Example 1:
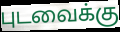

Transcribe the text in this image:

புடவைக்கு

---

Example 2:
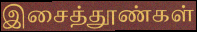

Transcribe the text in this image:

இசைத்தூண்கள்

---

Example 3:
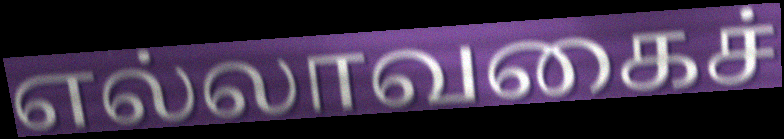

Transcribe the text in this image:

எல்லாவகைச்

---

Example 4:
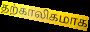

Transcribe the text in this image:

தற்காலிகமாக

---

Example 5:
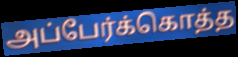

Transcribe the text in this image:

அப்பேர்க்கொத்த